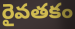
రైవతకం